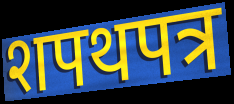
शपथपत्र